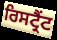
ਰਿਸਟ੍ਰੈਂਟ